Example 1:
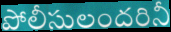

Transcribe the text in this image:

పోలీసులందరినీ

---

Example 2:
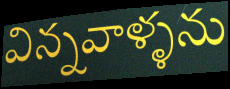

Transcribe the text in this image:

విన్నవాళ్ళను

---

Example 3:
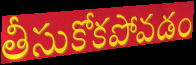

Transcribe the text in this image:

తీసుకోకపోవడం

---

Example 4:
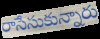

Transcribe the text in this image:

రాసేసుకున్నారు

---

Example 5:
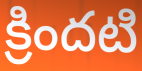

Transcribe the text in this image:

క్రిందటి